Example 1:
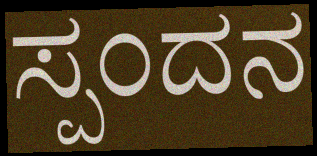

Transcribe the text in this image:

ಸ್ಪಂದನ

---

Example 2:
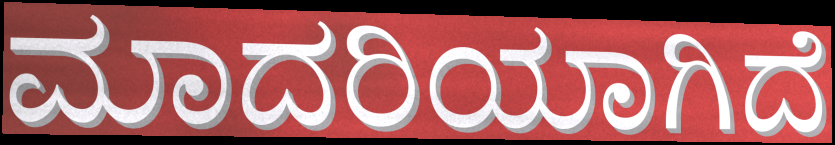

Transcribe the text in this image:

ಮಾದರಿಯಾಗಿದೆ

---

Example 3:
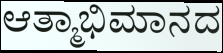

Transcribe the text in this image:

ಆತ್ಮಾಭಿಮಾನದ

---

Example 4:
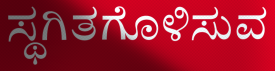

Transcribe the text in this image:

ಸ್ಥಗಿತಗೊಳಿಸುವ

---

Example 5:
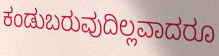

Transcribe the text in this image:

ಕಂಡುಬರುವುದಿಲ್ಲವಾದರೂ